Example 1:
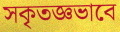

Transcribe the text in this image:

সকৃতজ্ঞভাবে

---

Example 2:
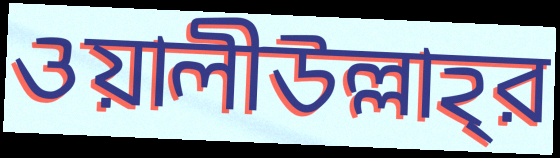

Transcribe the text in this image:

ওয়ালীউল্লাহ্‌র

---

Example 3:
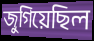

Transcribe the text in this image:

জুগিয়েছিল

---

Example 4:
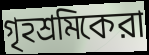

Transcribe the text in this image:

গৃহশ্রমিকেরা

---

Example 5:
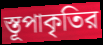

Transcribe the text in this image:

স্তূপাকৃতির